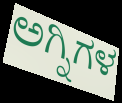
ಅಗ್ನಿಗಳ